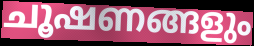
ചൂഷണങ്ങളും